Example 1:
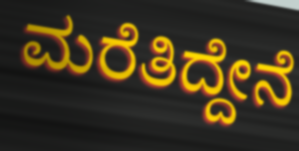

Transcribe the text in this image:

ಮರೆತಿದ್ದೇನೆ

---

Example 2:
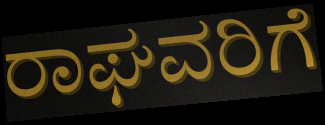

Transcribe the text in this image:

ರಾಘವರಿಗೆ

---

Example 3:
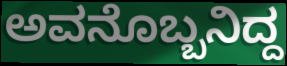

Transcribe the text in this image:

ಅವನೊಬ್ಬನಿದ್ದ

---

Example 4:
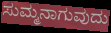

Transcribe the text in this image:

ಸುಮ್ಮನಾಗುವುದು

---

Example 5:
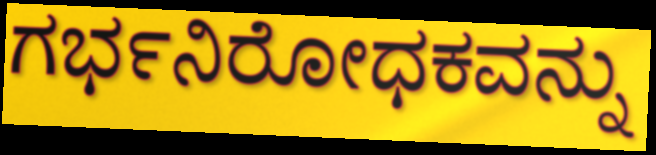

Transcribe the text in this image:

ಗರ್ಭನಿರೋಧಕವನ್ನು